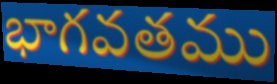
భాగవతము